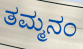
ತಮ್ಮನಂ